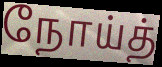
நோய்த்